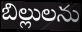
బిల్లులను